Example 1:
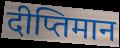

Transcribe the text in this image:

दीप्तिमान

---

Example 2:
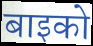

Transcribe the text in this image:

बाइको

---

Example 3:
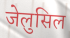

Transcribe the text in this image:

जेलुसिल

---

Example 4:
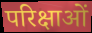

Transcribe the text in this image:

परिक्षाओं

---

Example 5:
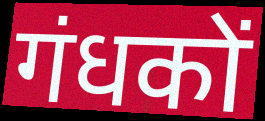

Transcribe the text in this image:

गंधकों